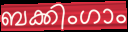
ബക്കിംഗാം